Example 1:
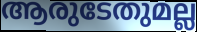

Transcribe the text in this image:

ആരുടേതുമല്ല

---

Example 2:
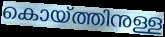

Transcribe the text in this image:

കൊയ്ത്തിനുള്ള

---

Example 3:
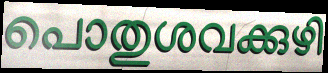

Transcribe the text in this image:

പൊതുശവക്കുഴി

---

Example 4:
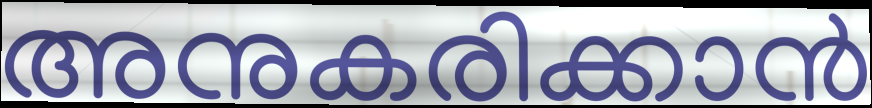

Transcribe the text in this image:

അനുകരിക്കാൻ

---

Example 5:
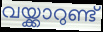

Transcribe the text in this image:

വയ്ക്കാറുണ്ട്